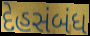
દેહસંબંધ